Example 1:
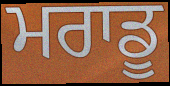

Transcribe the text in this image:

ਮਰਾਡੂ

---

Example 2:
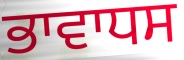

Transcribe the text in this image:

ਭਾਵਾਧਸ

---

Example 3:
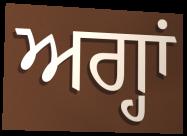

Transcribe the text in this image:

ਅਗ੍ਹਾਂ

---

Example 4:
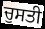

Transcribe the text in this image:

ਚੁਸਤੀ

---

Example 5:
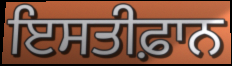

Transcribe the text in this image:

ਇਸਤੀਫ਼ਾਨ